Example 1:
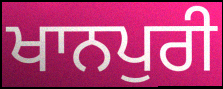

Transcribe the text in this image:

ਖਾਨਪੁਰੀ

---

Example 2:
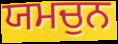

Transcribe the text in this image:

ਯਮਚੁਨ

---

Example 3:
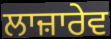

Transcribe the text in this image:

ਲਾਜ਼ਾਰੇਵ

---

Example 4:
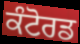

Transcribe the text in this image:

ਕੰਟੋਰਡ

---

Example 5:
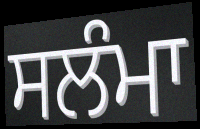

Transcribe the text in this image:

ਸਲੰਮਾ